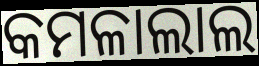
କମଳାଲାଲ